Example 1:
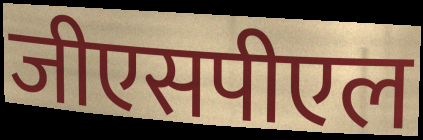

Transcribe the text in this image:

जीएसपीएल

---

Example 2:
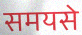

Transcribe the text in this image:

समयसे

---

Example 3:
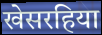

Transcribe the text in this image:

खेसरहिया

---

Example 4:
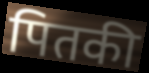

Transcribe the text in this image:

पितकी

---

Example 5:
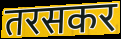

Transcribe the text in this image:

तरसकर